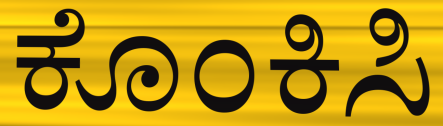
ಕೊಂಕಿಸಿ